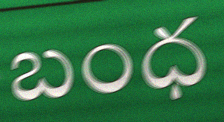
బంధ